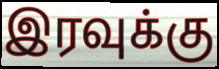
இரவுக்கு